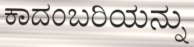
ಕಾದಂಬರಿಯನ್ನು